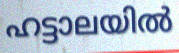
ഹട്ടാലയിൽ